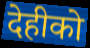
देहीको